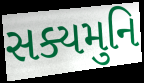
સક્યમુનિ